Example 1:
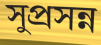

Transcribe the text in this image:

সুপ্রসন্ন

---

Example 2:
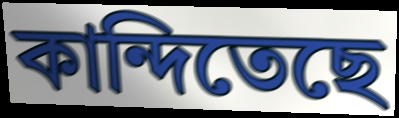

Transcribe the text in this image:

কান্দিতেছে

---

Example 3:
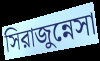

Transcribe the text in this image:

সিরাজুন্নেসা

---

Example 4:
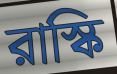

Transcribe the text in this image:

রাস্কি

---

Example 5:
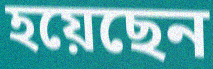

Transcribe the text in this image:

হয়েছেন